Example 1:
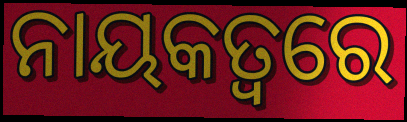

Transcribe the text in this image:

ନାୟକତ୍ବରେ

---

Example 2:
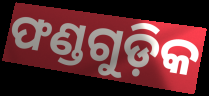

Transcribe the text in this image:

ଫଣ୍ଡଗୁଡ଼ିକ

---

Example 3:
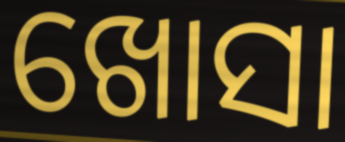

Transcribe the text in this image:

ଖୋସା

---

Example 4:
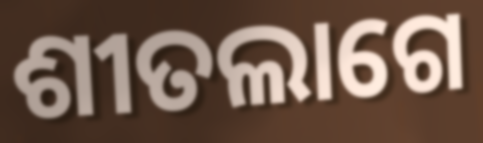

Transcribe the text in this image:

ଶୀତଲାଗେ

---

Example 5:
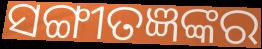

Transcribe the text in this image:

ସଙ୍ଗୀତଜ୍ଞଙ୍କର